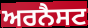
ਅਰਨੈਸਟ